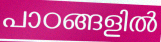
പാഠങ്ങളിൽ